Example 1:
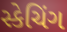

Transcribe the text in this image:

સ્કેચિંગ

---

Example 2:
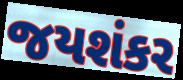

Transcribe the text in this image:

જયશંકર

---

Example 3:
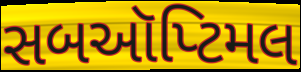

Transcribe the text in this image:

સબઑપ્ટિમલ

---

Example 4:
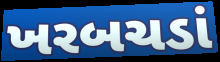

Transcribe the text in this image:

ખરબચડાં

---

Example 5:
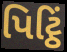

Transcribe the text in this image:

પિટ્ઠિં